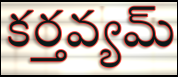
కర్తవ్యమ్